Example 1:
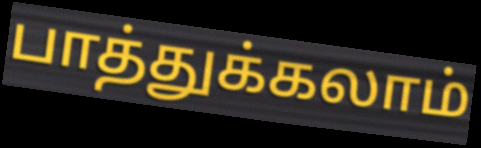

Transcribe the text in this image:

பாத்துக்கலாம்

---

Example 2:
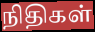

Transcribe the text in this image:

நிதிகள்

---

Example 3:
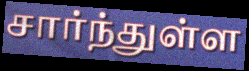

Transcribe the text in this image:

சார்ந்துள்ள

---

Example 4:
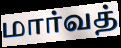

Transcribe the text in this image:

மார்வத்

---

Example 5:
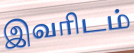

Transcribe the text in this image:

இவரிடம்